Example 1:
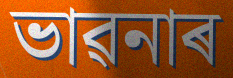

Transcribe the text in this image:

ভাৱনাৰ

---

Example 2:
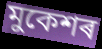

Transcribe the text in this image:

মুকেশৰ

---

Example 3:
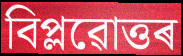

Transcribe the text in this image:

বিপ্লৱোত্তৰ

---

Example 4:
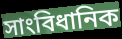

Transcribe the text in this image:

সাংবিধানিক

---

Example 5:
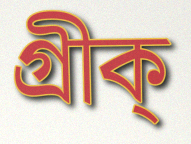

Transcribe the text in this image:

গ্ৰীক্